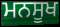
ਮਨਸੂਖ